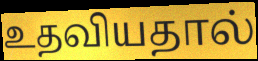
உதவியதால்